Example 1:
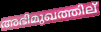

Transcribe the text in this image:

അഭിമുഖത്തില്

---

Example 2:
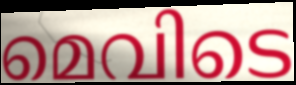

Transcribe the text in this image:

മെവിടെ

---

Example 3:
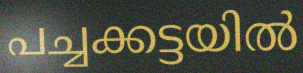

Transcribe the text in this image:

പച്ചക്കട്ടയിൽ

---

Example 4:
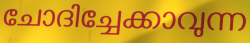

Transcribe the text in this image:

ചോദിച്ചേക്കാവുന്ന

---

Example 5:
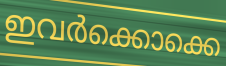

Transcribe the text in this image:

ഇവർക്കൊക്കെ